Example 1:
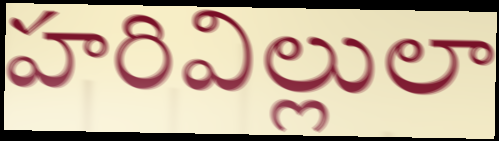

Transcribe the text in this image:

హరివిల్లులా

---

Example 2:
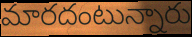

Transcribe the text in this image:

మారదంటున్నారు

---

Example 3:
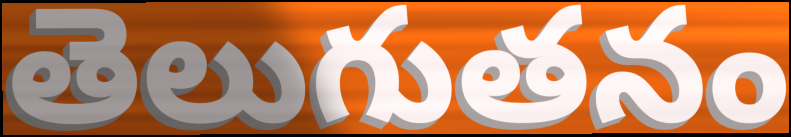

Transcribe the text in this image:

తెలుగుతనం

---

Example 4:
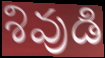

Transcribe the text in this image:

శివుడి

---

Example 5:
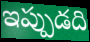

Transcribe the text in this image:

ఇప్పుడది